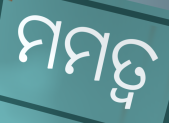
ମମତ୍ୱ